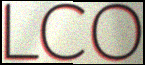
LCO